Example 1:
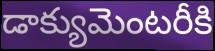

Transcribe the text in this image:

డాక్యుమెంటరీకి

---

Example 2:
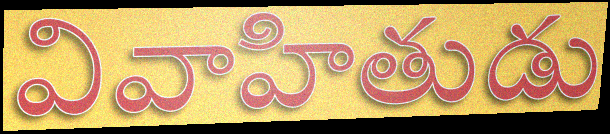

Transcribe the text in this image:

వివాహితుడు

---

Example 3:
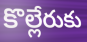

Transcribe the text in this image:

కొల్లేరుకు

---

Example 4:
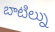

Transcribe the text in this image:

బాటిల్ను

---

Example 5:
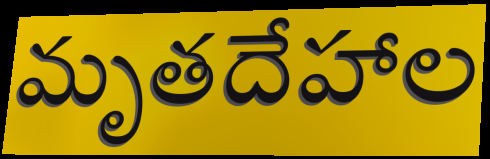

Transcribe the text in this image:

మృతదేహాల